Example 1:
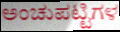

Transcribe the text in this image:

ಅಂಚುಪಟ್ಟಿಗಳ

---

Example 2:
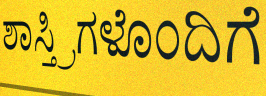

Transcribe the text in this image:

ಶಾಸ್ತ್ರಿಗಳೊಂದಿಗೆ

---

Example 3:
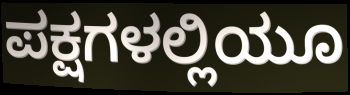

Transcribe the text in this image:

ಪಕ್ಷಗಳಲ್ಲಿಯೂ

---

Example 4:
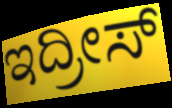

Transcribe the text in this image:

ಇದ್ರೀಸ್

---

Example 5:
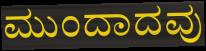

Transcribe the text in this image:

ಮುಂದಾದವು